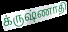
க்ருஷ்ணாதி